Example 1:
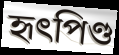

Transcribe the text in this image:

হৃৎপিণ্ড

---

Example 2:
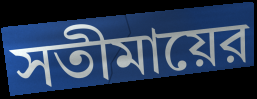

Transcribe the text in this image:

সতীমায়ের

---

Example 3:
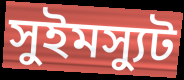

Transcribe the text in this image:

সুইমস্যুট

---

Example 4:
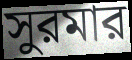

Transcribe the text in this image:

সুরমার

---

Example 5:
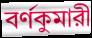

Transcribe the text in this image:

বর্ণকুমারী